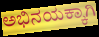
ಅಭಿನಯಕ್ಕಾಗಿ